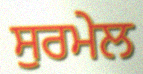
ਸੁਰਮੇਲ